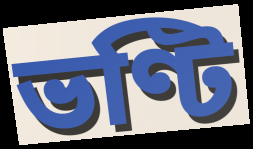
ভণ্টি